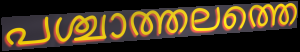
പശ്ചാത്തലത്തെ